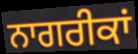
ਨਾਗਰੀਕਾਂ